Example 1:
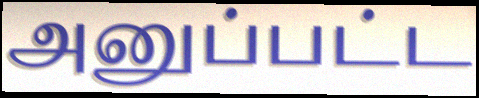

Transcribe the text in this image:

அனுப்பட்ட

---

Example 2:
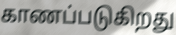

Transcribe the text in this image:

காணப்படுகிறது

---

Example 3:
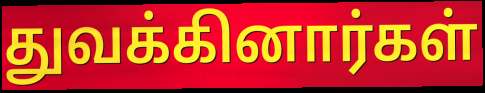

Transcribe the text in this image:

துவக்கினார்கள்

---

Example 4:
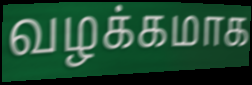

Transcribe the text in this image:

வழக்கமாக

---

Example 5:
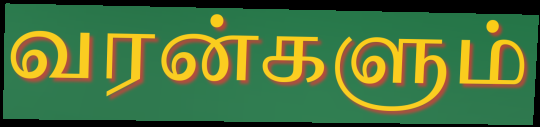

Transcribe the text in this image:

வரன்களும்